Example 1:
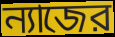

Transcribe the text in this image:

ন্যাজের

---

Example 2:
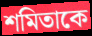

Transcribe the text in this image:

শমিতাকে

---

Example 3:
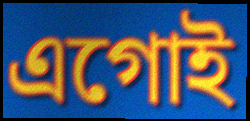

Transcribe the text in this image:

এগোই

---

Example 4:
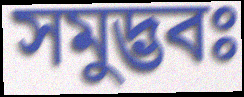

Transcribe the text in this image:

সমুদ্ভবঃ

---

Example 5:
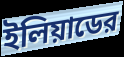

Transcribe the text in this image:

ইলিয়াডের